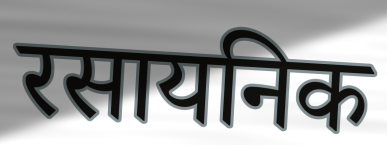
रसायनिक